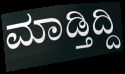
ಮಾಡ್ತಿದ್ದಿ